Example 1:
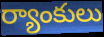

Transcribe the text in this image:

ర్యాంకులు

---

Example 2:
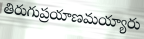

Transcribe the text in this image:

తిరుగుప్రయాణమయ్యారు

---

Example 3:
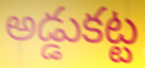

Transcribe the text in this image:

అడ్డుకట్ట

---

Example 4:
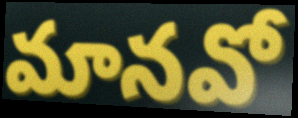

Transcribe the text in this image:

మానవో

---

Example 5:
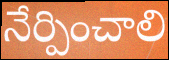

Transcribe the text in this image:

నేర్పించాలి